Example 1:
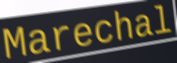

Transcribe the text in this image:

Marechal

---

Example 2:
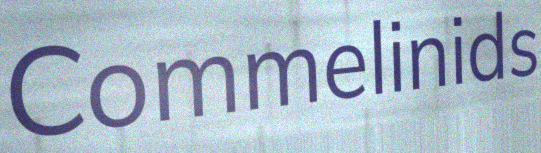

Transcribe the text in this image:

Commelinids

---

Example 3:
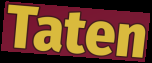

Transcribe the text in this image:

Taten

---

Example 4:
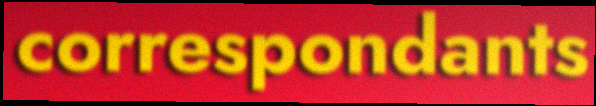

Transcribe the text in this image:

correspondants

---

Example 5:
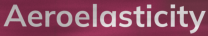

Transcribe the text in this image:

Aeroelasticity